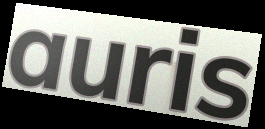
auris